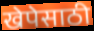
खेपेसाठी